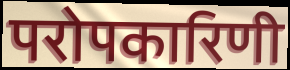
परोपकारिणी